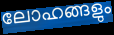
ലോഹങ്ങളും